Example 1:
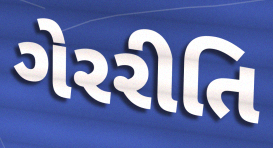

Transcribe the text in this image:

ગેરરીતિ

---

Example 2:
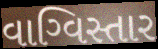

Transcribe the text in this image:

વાગ્વિસ્તાર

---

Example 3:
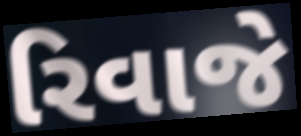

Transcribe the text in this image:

રિવાજે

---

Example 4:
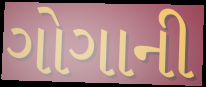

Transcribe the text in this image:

ગોગાની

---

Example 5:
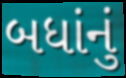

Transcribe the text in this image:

બધાંનું